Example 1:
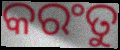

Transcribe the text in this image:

କରଂତୁ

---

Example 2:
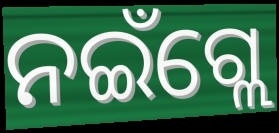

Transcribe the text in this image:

ନଇଁଗ୍ଲେ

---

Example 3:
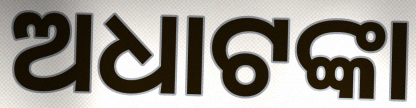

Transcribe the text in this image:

ଅଧାଟଙ୍କା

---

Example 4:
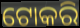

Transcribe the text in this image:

ଟୋକରି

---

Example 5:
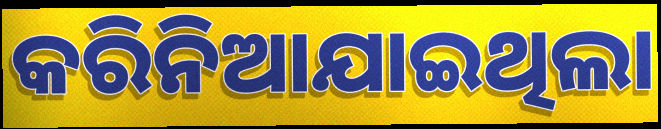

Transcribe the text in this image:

କରିନିଆଯାଇଥିଲା